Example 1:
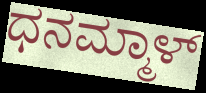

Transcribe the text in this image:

ಧನಮ್ಮಾಳ್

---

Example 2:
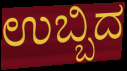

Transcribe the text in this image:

ಉಬ್ಬಿದ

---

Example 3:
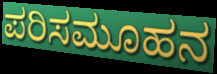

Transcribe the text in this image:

ಪರಿಸಮೂಹನ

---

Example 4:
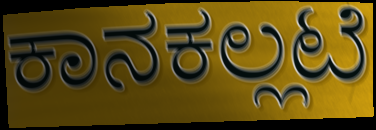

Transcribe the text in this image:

ಕಾನಕಲ್ಲಟೆ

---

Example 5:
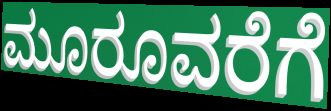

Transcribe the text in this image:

ಮೂರೂವರೆಗೆ